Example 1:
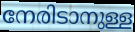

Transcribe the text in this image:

നേരിടാനുള്ള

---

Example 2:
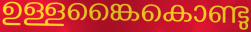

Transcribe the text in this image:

ഉള്ളങ്കൈകൊണ്ടു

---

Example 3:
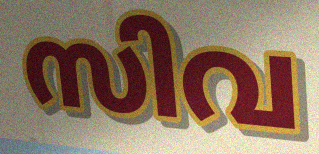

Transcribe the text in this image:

സിവ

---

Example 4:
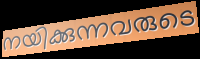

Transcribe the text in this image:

നയിക്കുന്നവരുടെ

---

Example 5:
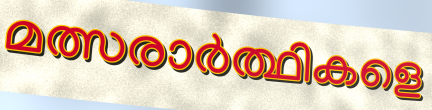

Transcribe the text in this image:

മത്സരാർത്ഥികളെ